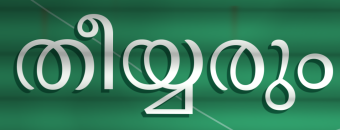
തീയ്യരും